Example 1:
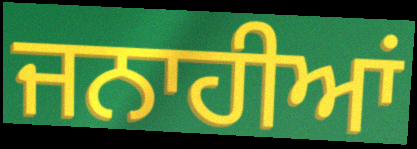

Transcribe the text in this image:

ਜਨਾਹੀਆਂ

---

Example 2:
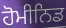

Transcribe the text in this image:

ਹੋਮੀਨਿਡ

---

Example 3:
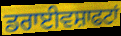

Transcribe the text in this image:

ਡਰਾਈਵਸ਼ਾਫਟਾਂ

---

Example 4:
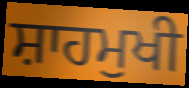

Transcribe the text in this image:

ਸ਼ਾਹਮੁਖੀ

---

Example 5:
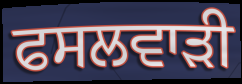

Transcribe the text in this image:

ਫਸਲਵਾੜੀ